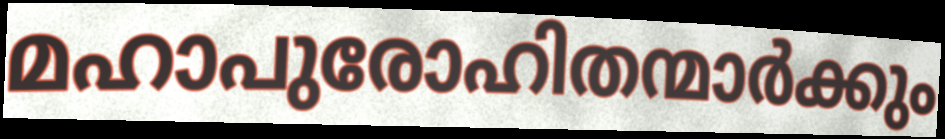
മഹാപുരോഹിതന്മാർക്കും